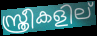
സ്ത്രീകളില്